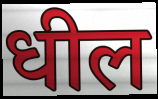
धील